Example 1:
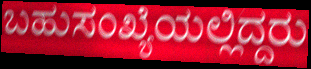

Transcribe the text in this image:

ಬಹುಸಂಖ್ಯೆಯಲ್ಲಿದ್ದರು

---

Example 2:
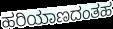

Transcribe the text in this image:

ಹರಿಯಾಣದಂತಹ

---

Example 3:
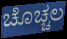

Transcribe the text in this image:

ಚೊಚ್ಚಲ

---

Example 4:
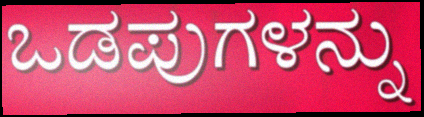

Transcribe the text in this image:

ಒಡಪುಗಳನ್ನು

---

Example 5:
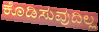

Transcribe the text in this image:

ಕೊಡಿಸುವುದಿಲ್ಲ